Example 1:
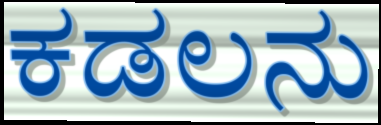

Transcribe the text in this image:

ಕಡಲನು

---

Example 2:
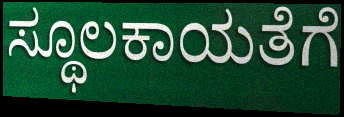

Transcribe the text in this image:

ಸ್ಥೂಲಕಾಯತೆಗೆ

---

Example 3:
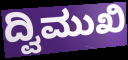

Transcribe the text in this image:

ದ್ವಿಮುಖಿ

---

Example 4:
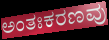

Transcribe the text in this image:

ಅಂತಃಕರಣವು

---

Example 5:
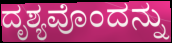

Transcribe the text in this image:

ದೃಶ್ಯವೊಂದನ್ನು